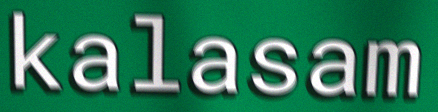
kalasam